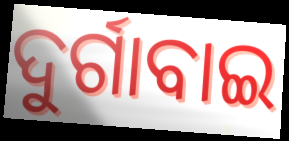
ଦୁର୍ଗାବାଇ